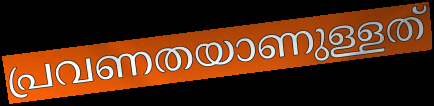
പ്രവണതയാണുള്ളത്